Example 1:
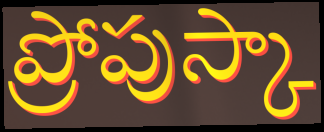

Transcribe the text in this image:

ప్రోపుస్కా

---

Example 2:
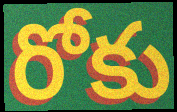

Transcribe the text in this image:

రోకు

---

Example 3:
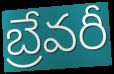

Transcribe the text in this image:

బ్రేవరీ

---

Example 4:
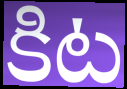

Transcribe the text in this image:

కిట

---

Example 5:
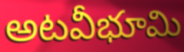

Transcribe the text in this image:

అటవీభూమి